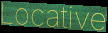
Locative